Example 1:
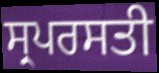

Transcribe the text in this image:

ਸ੍ਰਪਰਸਤੀ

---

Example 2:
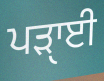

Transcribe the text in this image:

ਪੜਾੑਈ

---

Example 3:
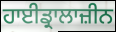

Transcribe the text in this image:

ਹਾਈਡ੍ਰਾਲਾਜ਼ੀਨ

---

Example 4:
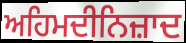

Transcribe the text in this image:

ਅਹਿਮਦੀਨਿਜ਼ਾਦ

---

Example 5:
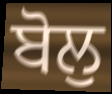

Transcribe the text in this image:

ਬੋਲੁ